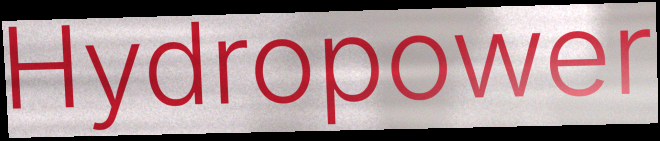
Hydropower